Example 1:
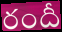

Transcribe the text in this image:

రందీ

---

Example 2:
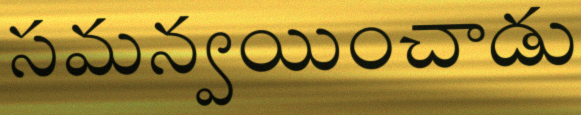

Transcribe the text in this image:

సమన్వయించాడు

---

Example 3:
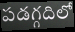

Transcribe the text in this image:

పడగ్గదిలో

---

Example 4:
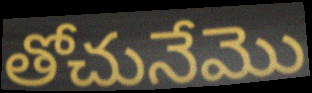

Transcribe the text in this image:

తోచునేమొ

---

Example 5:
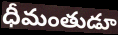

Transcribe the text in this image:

ధీమంతుడూ